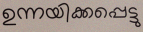
ഉന്നയിക്കപ്പെട്ടു